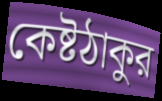
কেষ্টঠাকুর